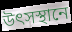
উৎসস্থানে